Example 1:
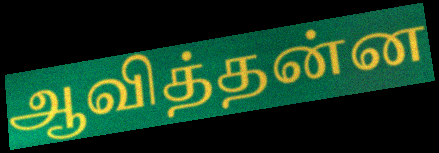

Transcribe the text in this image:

ஆவித்தன்ன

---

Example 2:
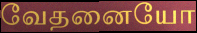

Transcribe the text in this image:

வேதனையோ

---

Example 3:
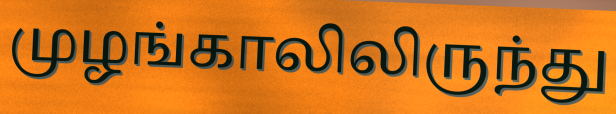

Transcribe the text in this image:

முழங்காலிலிருந்து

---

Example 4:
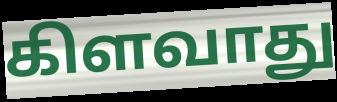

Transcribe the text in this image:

கிளவாது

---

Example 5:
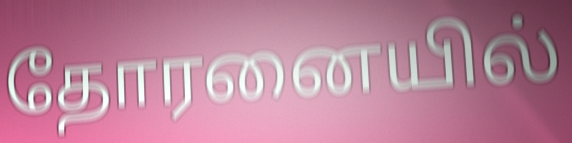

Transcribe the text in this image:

தோரனையில்